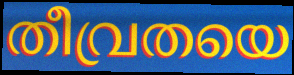
തീവ്രതയെ